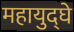
महायुद्घे